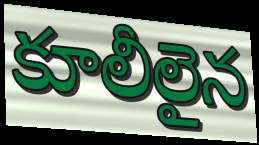
కూలీలైన